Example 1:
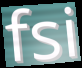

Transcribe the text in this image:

fsi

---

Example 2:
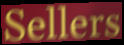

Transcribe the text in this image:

Sellers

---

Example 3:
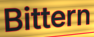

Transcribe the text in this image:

Bittern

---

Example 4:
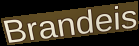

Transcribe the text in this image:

Brandeis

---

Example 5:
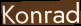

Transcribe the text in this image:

Konrad